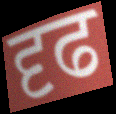
दृढ